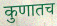
कुणातच